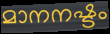
മാനനഷ്ടം